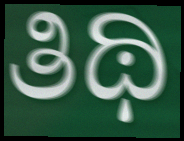
ತಿಥಿ